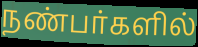
நண்பர்களில்